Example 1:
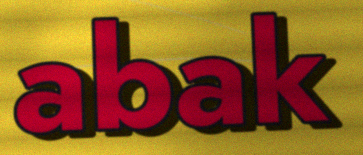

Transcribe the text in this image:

abak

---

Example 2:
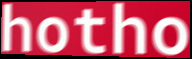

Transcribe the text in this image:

hotho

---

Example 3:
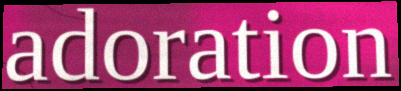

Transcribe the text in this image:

adoration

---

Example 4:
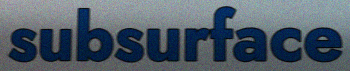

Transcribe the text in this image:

subsurface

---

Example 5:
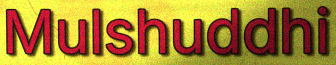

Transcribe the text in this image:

Mulshuddhi